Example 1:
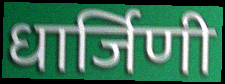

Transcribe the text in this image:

धार्जिणी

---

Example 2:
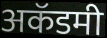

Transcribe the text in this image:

अकॅडमी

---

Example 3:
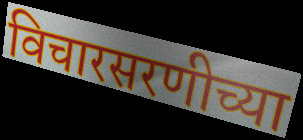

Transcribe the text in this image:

विचारसरणीच्या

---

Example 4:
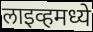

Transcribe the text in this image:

लाइव्हमध्ये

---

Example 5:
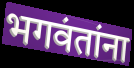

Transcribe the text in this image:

भगवंतांना